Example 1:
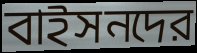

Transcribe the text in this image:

বাইসনদের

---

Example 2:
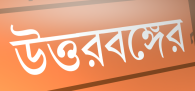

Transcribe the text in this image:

উত্তরবঙ্গের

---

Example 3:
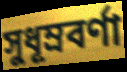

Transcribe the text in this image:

সুধূম্রবর্ণা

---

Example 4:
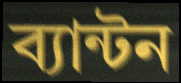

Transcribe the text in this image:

ব্যান্টন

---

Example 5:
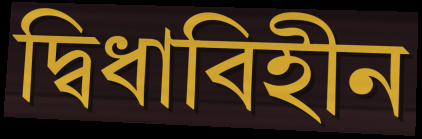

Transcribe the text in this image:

দ্বিধাবিহীন